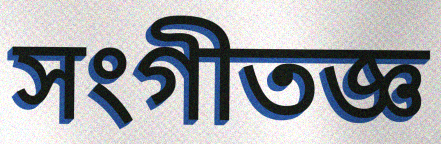
সংগীতজ্ঞ